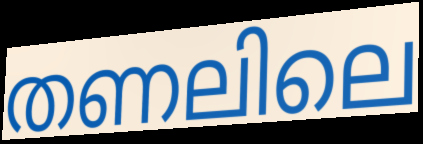
തണലിലെ